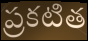
ప్రకటిత